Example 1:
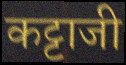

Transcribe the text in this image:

कट्टाजी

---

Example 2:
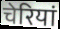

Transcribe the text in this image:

चेरियां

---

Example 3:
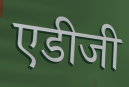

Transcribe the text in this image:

एडीजी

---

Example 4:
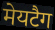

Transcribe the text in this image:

मेयटैग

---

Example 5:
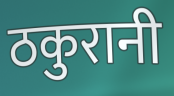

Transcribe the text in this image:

ठकुरानी